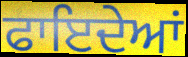
ਫਾਇਦੇਆਂ